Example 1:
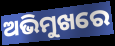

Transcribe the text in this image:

ଅଭିମୁଖରେ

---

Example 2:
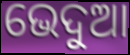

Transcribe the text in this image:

ଭେଦୁଆ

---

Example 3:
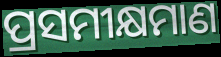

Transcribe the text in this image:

ପ୍ରସମୀକ୍ଷମାଣ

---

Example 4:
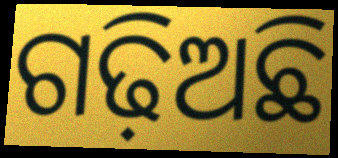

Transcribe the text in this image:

ଗଢ଼ିଅଛି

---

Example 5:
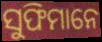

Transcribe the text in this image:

ସୁଫିମାନେ